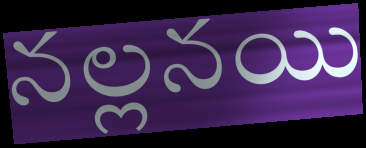
నల్లనయి